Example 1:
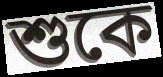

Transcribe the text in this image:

শুকে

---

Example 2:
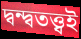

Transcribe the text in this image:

দ্বন্দ্বতত্ত্বই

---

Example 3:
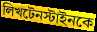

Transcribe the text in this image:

লিখটেনস্টাইনকে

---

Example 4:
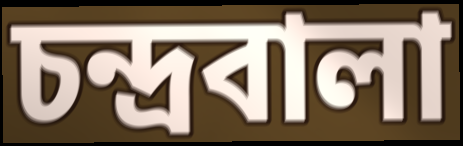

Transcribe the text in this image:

চন্দ্রবালা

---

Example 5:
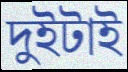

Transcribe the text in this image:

দুইটাই